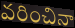
వరించినా